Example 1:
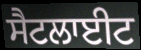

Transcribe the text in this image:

ਸੈਟਲਾਈਟ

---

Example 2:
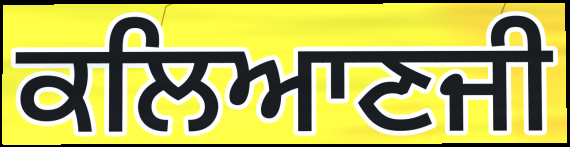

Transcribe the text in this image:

ਕਲਿਆਣਜੀ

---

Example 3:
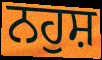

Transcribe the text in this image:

ਨਹੁਸ਼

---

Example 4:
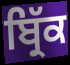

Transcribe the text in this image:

ਬ੍ਰਿੱਕ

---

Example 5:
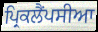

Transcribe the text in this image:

ਪ੍ਰਿਕਲੈਂਪਸੀਆ